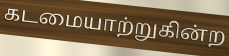
கடமையாற்றுகின்ற